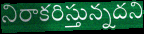
నిరాకరిస్తున్నదని